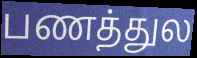
பணத்துல